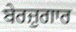
ਬੇਰਜ਼ੁਗਾਰ